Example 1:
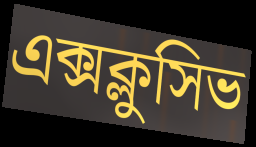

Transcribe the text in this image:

এক্সক্লুসিভ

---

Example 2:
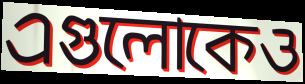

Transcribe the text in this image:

এগুলোকেও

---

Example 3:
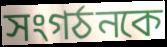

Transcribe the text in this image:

সংগঠনকে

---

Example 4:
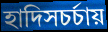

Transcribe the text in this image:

হাদিসচর্চায়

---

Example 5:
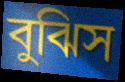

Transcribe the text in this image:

বুঝিস